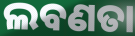
ଲବଣତା